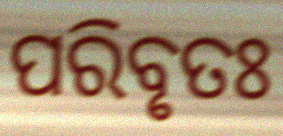
ପରିବୃତଃ